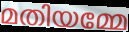
മതിയമ്മേ